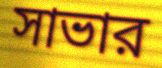
সাভার